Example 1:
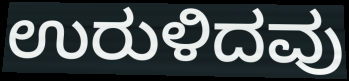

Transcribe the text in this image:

ಉರುಳಿದವು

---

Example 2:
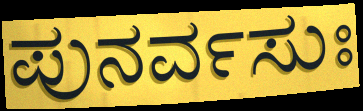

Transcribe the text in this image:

ಪುನರ್ವಸುಃ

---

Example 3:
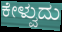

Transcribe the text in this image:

ಕೇಳ್ವುದು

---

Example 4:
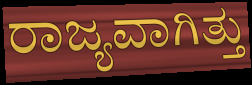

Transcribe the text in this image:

ರಾಜ್ಯವಾಗಿತ್ತು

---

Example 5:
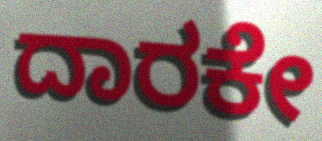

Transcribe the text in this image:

ದಾರಕೇ